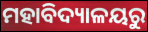
ମହାବିଦ୍ୟାଳୟରୁ